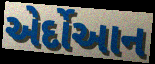
એર્દોઆન